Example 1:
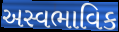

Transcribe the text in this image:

અસ્વભાવિક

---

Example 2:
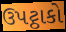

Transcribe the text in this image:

ઉપટ્ઠાકો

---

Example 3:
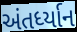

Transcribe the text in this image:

અંતર્ધ્યાન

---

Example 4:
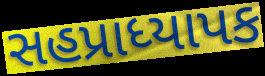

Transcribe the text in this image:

સહપ્રાધ્યાપક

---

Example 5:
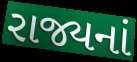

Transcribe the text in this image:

રાજ્યનાં